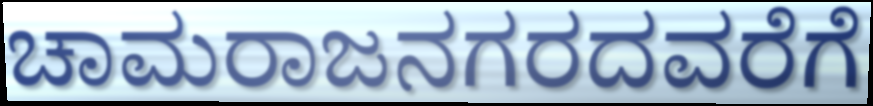
ಚಾಮರಾಜನಗರದವರೆಗೆ